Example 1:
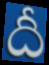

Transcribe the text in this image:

దీ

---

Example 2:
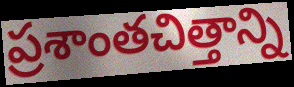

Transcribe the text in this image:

ప్రశాంతచిత్తాన్ని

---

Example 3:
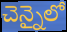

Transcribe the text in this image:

చెన్నైలో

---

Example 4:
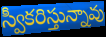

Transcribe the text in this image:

స్వీకరిస్తున్నావు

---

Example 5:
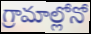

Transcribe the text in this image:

గ్రామాల్లోనో